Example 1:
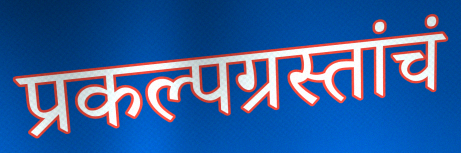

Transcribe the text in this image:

प्रकल्पग्रस्तांचं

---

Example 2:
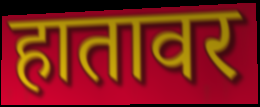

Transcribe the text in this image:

हातावर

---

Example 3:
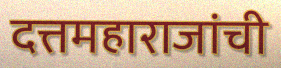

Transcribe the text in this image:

दत्तमहाराजांची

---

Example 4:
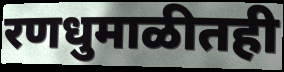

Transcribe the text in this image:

रणधुमाळीतही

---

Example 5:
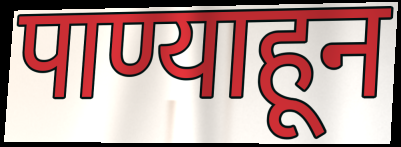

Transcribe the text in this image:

पाण्याहून